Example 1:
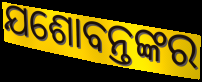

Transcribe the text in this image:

ଯଶୋବନ୍ତଙ୍କର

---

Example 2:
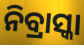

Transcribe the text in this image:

ନିବ୍ରାସ୍କା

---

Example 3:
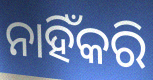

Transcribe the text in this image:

ନାହିଁକରି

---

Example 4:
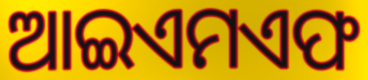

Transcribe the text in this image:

ଆଇଏମଏଫ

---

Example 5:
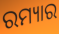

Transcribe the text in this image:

ରମ୍ୟାର